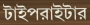
টাইপরাইটার